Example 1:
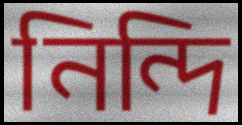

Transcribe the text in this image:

নিন্দি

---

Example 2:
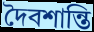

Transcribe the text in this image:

দৈবশান্তি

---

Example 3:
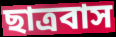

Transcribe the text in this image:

ছাত্রবাস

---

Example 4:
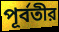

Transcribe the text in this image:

পূর্বতীর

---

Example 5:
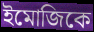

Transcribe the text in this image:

ইমোজিকে